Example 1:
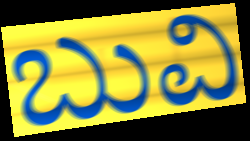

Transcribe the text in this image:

ಬುವಿ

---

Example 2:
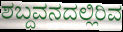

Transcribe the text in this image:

ಶಬ್ದವನದಲ್ಲಿರಿವ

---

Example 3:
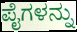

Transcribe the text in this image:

ಪೈಗಳನ್ನು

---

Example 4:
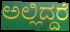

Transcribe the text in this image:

ಅಲ್ಲಿದ್ದರೆ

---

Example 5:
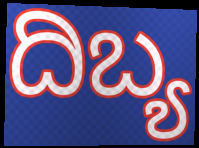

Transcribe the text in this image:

ದಿಬ್ಯ